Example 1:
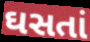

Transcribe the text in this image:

ઘસતાં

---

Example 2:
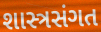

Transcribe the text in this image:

શાસ્ત્રસંગત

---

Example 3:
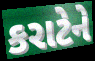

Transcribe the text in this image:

કરાટેને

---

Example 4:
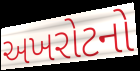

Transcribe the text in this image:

અખરોટનો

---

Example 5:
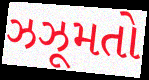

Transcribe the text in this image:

ઝઝૂમતો